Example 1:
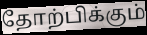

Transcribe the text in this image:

தோற்பிக்கும்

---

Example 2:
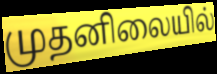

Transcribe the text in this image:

முதனிலையில்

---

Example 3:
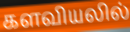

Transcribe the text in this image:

களவியலில்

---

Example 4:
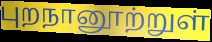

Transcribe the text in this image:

புறநானூற்றுள்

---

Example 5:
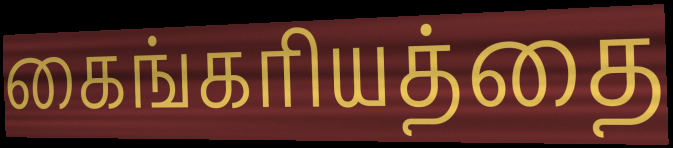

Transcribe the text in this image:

கைங்கரியத்தை